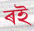
ৰই